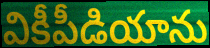
వికీపీడియాను